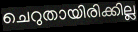
ചെറുതായിരിക്കില്ല